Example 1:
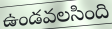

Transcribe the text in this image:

ఉండవలసింది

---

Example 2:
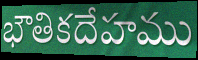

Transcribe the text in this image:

భౌతికదేహము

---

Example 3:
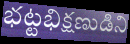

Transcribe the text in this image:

భట్టభిక్షణుడిని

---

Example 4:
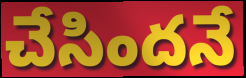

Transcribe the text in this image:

చేసిందనే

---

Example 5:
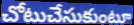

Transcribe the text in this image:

చోటుచేసుకుంటూ